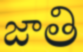
జాతి